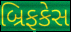
બ્રિફકેસ